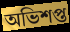
অভিশপ্ত